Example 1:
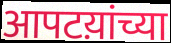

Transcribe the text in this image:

आपटय़ांच्या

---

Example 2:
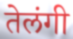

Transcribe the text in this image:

तेलंगी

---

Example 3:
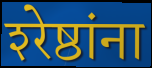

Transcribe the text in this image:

श्रेष्ठांना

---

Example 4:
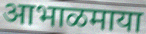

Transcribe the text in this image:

आभाळमाया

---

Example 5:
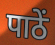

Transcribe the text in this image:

पाठें